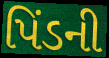
પિંડની